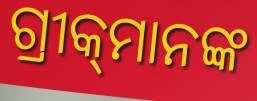
ଗ୍ରୀକ୍‌ମାନଙ୍କ